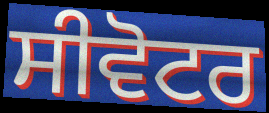
ਸੀਵੋਟਰ